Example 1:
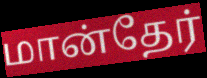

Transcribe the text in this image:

மான்தேர்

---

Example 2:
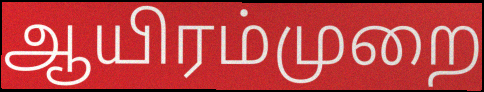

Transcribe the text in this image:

ஆயிரம்முறை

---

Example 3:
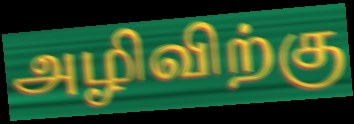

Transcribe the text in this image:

அழிவிற்கு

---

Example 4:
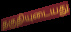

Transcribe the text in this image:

தகுதியுடையது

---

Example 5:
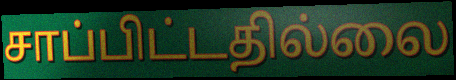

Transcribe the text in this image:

சாப்பிட்டதில்லை